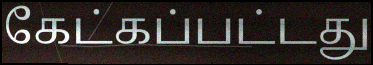
கேட்கப்பட்டது